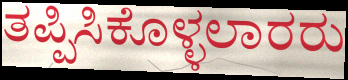
ತಪ್ಪಿಸಿಕೊಳ್ಳಲಾರರು